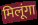
मिलूंगा